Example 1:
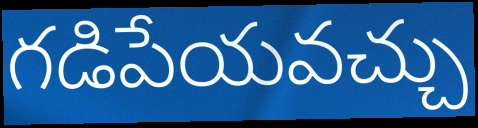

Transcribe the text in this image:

గడిపేయవచ్చు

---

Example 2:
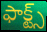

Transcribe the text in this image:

ఫాక్ట్స్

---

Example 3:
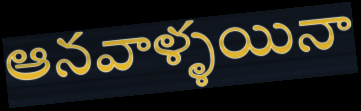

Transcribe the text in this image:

ఆనవాళ్ళయినా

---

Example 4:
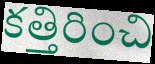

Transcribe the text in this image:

కత్తిరించి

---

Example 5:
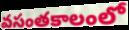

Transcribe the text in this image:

వసంతకాలంలో